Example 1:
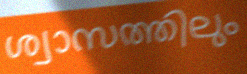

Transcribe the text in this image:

ശ്വാസത്തിലും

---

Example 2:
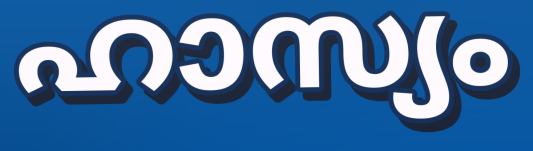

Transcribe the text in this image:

ഹാസ്യം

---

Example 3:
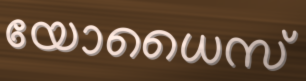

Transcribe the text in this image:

യോധൈസ്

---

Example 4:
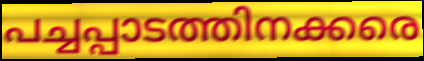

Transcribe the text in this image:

പച്ചപ്പാടത്തിനക്കരെ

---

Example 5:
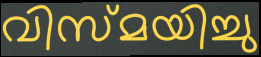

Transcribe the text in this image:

വിസ്മയിച്ചു